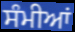
ਸੰਮੀਆਂ